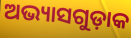
ଅଭ୍ୟାସଗୁଡ଼ାକ